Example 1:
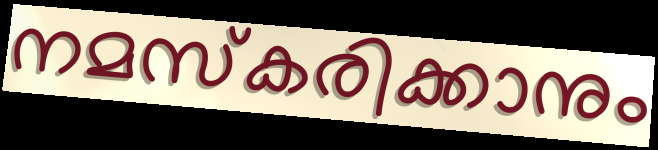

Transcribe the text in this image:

നമസ്കരിക്കാനും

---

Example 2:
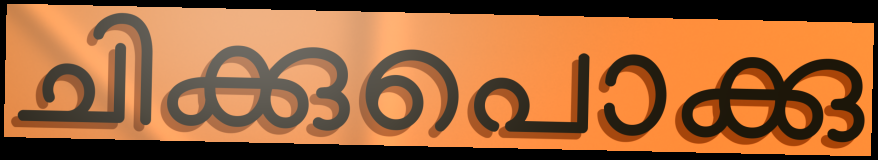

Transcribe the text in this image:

ചിക്കുപൊക്കു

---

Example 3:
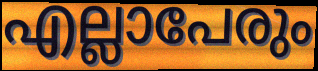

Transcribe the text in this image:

എല്ലാപേരും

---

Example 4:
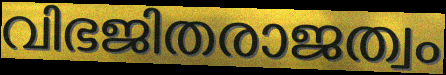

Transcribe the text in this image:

വിഭജിതരാജത്വം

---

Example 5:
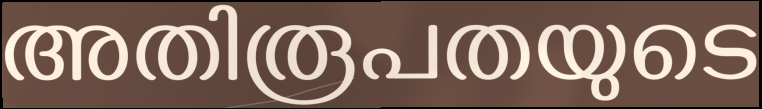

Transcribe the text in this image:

അതിരൂപതയുടെ